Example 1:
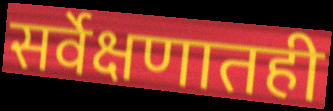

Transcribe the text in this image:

सर्वेक्षणातही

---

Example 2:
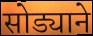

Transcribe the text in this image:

सोड्याने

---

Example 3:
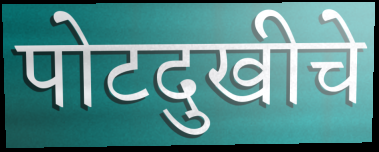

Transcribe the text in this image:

पोटदुखीचे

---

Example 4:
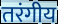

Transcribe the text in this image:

तरंगीय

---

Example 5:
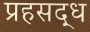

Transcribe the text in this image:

प्रहसद्ध